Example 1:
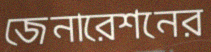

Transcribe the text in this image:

জেনারেশনের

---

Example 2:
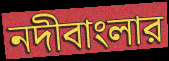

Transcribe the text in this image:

নদীবাংলার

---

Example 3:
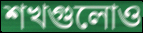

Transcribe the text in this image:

শখগুলোও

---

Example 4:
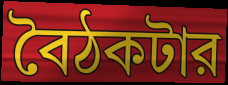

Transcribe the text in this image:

বৈঠকটার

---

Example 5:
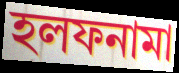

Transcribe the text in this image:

হলফনামা